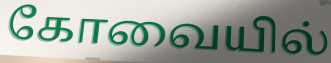
கோவையில்